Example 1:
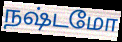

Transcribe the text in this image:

நஷ்டமோ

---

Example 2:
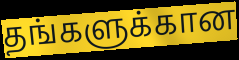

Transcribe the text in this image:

தங்களுக்கான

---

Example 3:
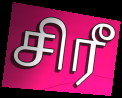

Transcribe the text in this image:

சிரீ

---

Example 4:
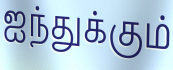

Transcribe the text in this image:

ஐந்துக்கும்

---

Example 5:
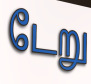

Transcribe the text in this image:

டேறு